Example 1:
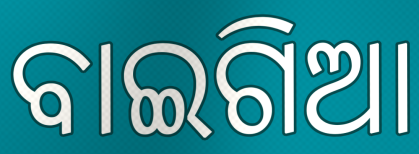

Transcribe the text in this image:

ବାଇଗିଆ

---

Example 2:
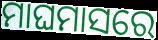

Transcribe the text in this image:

ମାଘମାସରେ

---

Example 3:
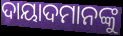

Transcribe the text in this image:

ଦାୟାଦମାନଙ୍କୁ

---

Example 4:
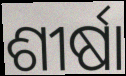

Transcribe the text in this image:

ଶୀର୍ଷା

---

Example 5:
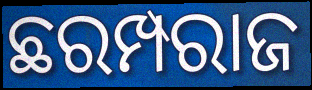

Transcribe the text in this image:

ଛରମ୍ପରାଜ